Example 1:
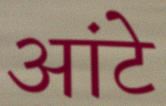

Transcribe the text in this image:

आंटे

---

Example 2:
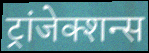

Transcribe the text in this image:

ट्रांजेक्शन्स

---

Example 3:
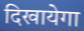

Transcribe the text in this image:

दिखायेगा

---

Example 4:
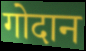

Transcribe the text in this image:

गोदान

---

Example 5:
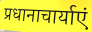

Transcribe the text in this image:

प्रधानाचार्याएं